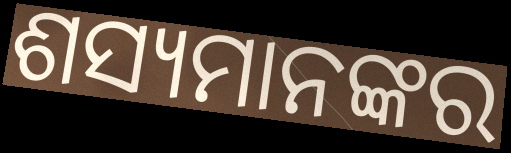
ଶସ୍ୟମାନଙ୍କର